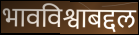
भावविश्वाबद्दल